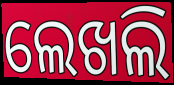
ଲେଖଲି